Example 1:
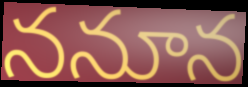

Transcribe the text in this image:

ననూన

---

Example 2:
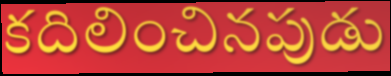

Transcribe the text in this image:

కదిలించినపుడు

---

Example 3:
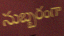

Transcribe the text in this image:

సుబ్బరంగా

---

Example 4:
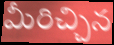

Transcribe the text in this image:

మీరిచ్చిన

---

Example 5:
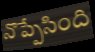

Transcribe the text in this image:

నొప్పేసింది